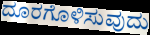
ದೂರಗೊಳಿಸುವುದು